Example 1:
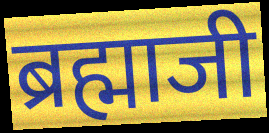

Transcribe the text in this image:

ब्रह्माजी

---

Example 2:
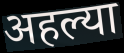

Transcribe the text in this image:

अहल्या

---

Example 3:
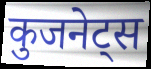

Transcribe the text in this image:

कुजनेट्स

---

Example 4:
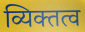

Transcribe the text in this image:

व्यिक्तत्व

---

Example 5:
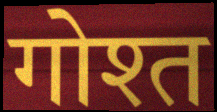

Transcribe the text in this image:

गोश्‍त